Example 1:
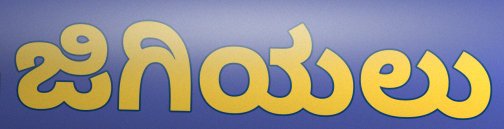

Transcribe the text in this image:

ಜಿಗಿಯಲು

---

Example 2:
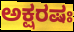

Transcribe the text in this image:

ಅಕ್ಷರಷಃ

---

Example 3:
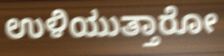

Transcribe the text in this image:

ಉಳಿಯುತ್ತಾರೋ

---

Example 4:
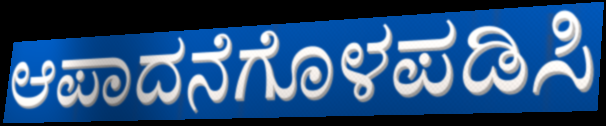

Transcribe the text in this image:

ಆಪಾದನೆಗೊಳಪಡಿಸಿ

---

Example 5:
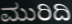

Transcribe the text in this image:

ಮುರಿದಿ